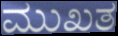
ಮುಖತ